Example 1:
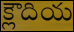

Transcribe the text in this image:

క్లౌదియ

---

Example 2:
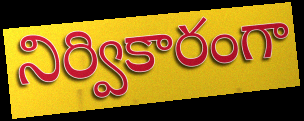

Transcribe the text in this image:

నిర్వికారంగా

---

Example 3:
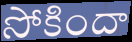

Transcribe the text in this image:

సోకిందా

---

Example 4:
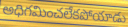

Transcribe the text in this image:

అధిగమించలేకపోయాడు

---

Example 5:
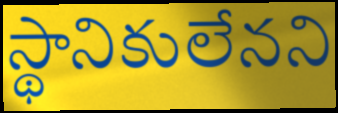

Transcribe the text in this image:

స్థానికులేనని